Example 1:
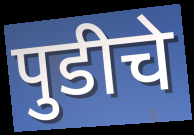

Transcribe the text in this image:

पुडीचे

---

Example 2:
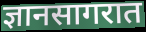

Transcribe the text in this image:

ज्ञानसागरात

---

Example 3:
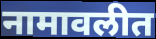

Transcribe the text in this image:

नामावलीत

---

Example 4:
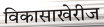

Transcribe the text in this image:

विकासाखेरीज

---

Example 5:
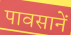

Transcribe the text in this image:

पावसानें